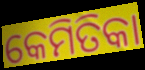
କେମିତିକା